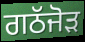
ਗਠੱਜੋੜ